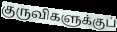
குருவிகளுக்குப்